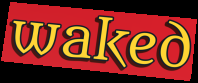
waked